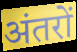
अंतरों